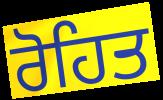
ਰੋਹਿਤ